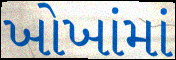
ખોખાંમાં